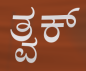
ತ್ವಕ್